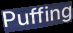
Puffing